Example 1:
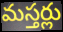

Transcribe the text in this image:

మస్తర్లు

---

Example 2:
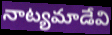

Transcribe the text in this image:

నాట్యమాడేవి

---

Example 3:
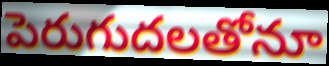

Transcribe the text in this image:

పెరుగుదలతోనూ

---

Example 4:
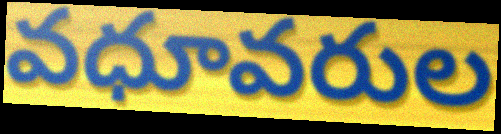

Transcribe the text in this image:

వధూవరుల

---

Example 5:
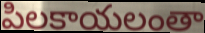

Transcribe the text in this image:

పిలకాయలంతా